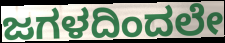
ಜಗಳದಿಂದಲೇ